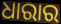
ଧାରାର